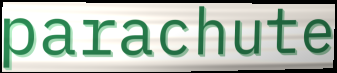
parachute